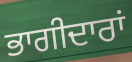
ਭਾਗੀਦਾਰਾਂ